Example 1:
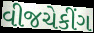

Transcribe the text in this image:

વીજચેકીંગ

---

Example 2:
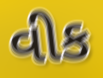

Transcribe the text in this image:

વીક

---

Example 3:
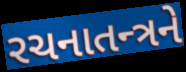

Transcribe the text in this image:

રચનાતન્ત્રને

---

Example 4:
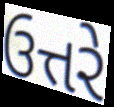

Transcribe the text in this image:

ઉત્તરે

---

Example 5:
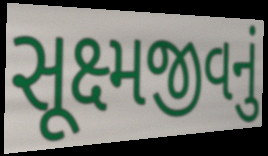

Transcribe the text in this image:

સૂક્ષ્મજીવનું